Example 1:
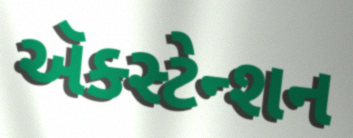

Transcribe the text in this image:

ઍક્સ્ટેન્શન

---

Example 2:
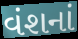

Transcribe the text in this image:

વંશનાં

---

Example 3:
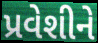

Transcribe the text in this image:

પ્રવેશીને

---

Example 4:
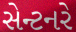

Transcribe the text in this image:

સેન્ટનરે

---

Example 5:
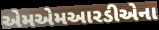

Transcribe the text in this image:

એમએમઆરડીએના